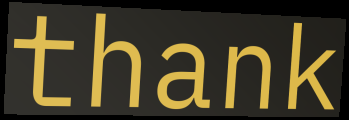
thank